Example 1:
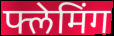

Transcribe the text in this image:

फ्लेमिंग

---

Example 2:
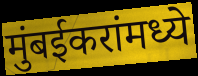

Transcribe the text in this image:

मुंबईकरांमध्ये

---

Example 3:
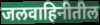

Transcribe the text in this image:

जलवाहिनीतील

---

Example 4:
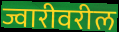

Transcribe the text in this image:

ज्वारीवरील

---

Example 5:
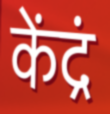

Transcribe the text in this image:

केंद्रं